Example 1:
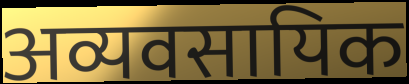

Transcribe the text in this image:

अव्यवसायिक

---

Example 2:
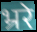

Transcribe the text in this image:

भ्ररे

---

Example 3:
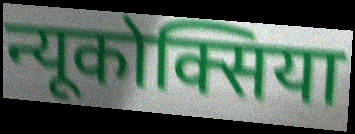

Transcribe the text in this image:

न्यूकोक्सिया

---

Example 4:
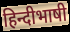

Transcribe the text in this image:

हिन्दीभाषी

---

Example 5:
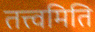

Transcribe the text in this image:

तत्त्वमिति